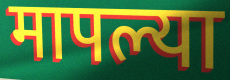
मापल्या